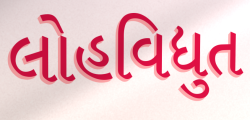
લોહવિદ્યુત